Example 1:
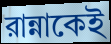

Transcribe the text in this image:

রান্নাকেই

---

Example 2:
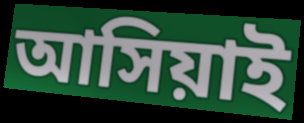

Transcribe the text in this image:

আসিয়াই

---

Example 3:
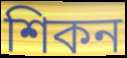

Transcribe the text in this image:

শিকন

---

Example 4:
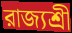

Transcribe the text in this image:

রাজ্যশ্রী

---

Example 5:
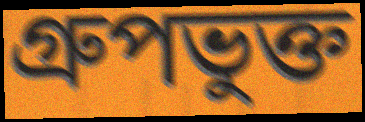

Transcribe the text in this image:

গ্রুপভুক্ত